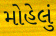
મોહેલું